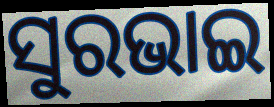
ସୁରଭାଇ